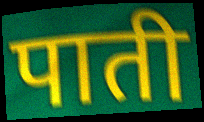
पाती